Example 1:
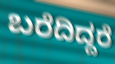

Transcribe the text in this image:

ಬರೆದಿದ್ದರೆ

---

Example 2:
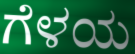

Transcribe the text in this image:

ಗೆಳಯ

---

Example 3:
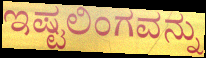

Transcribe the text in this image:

ಇಷ್ಟಲಿಂಗವನ್ನು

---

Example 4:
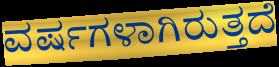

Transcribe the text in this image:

ವರ್ಷಗಳಾಗಿರುತ್ತದೆ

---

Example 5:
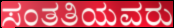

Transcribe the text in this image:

ಸಂತತಿಯವರು